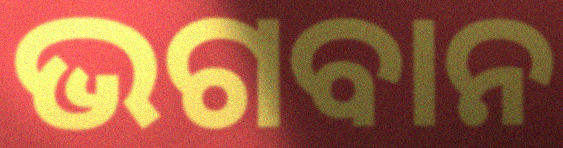
ଭଗବାନ